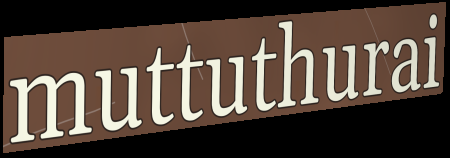
muttuthurai